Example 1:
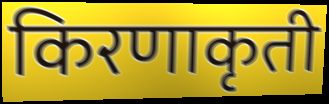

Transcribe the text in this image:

किरणाकृती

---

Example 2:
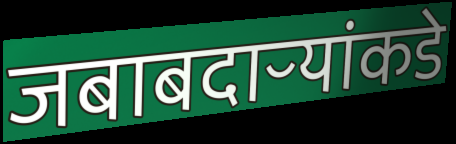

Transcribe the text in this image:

जबाबदाऱ्यांकडे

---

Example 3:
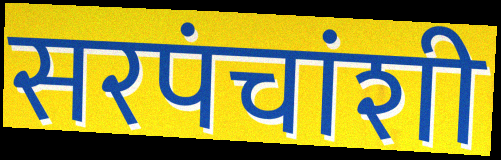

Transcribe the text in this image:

सरपंचांशी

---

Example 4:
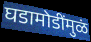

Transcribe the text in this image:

घडामोडींमुळं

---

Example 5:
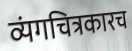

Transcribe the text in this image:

व्यंगचित्रकारच